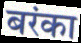
बरंका